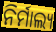
ନିର୍ମାଲ୍ୟ